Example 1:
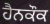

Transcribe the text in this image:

ਹੈਨਕੌਕ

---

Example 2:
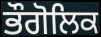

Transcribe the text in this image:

ਭੌਗੋਲਿਕ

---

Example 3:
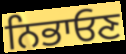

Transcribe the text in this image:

ਨਿਭਾਓਣ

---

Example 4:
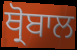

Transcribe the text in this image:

ਥ੍ਰੋਬਾਲ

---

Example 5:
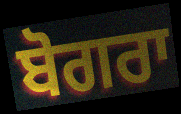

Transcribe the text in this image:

ਬੋਗਰਾ